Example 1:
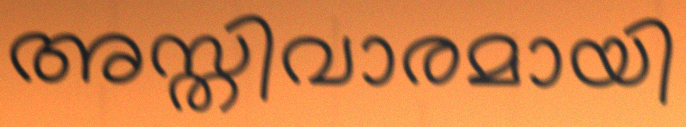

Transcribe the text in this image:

അസ്തിവാരമായി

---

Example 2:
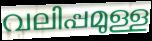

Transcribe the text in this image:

വലിപ്പമുള്ള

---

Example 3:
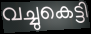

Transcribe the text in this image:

വച്ചുകെട്ടി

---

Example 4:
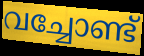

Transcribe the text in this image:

വച്ചോണ്ട്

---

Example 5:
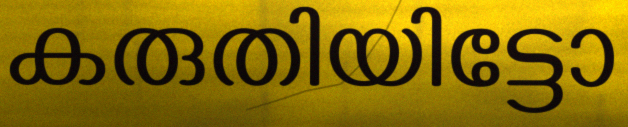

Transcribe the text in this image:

കരുതിയിട്ടോ